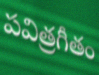
పవిత్రగీతం